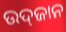
ଉଦ୍‌ଜାନ